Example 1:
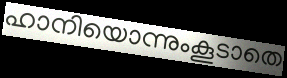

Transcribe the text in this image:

ഹാനിയൊന്നുംകൂടാതെ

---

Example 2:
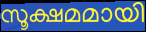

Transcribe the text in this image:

സൂക്ഷമമായി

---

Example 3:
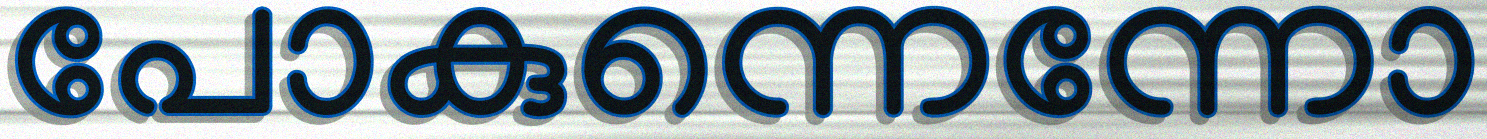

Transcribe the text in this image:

പോകുന്നെന്നോ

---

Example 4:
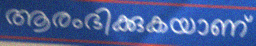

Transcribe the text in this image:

ആരംഭിക്കുകയാണ്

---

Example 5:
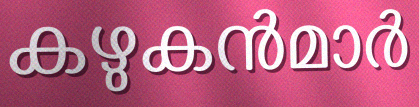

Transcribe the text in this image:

കഴുകൻമാർ